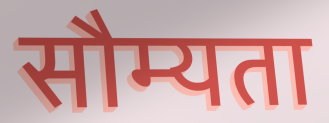
सौम्यता